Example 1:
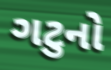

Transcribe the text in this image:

ગટુનો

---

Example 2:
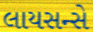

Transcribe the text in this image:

લાયસન્સે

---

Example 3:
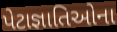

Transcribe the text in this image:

પેટાજ્ઞાતિઓના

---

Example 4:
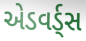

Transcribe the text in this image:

એડવર્ડ્સ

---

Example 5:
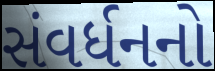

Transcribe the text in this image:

સંવર્ધનનો